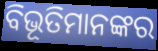
ବିଭୂତିମାନଙ୍କର